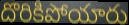
దొరికిపోయారు